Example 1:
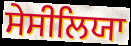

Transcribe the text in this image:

ਸੇਸੀਲਿਯਾ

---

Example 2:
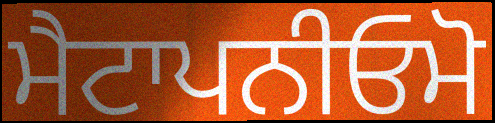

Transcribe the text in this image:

ਮੈਟਾਪਨੀਓਮੋ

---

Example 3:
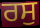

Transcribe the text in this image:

ਰਸੁ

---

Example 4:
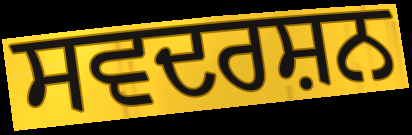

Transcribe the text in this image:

ਸਵਦਰਸ਼ਨ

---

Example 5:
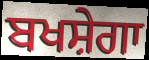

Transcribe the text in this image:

ਬਖਸ਼ੇਗਾ